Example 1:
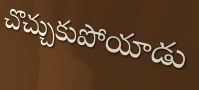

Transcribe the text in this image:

చొచ్చుకుపోయాడు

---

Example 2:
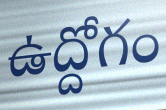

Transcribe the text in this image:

ఉద్దోగం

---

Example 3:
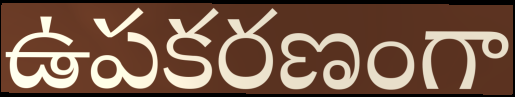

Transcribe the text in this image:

ఉపకరణంగా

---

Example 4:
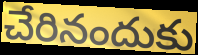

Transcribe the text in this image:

చేరినందుకు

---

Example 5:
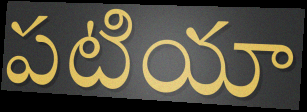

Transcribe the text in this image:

పటియా